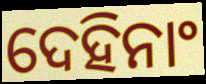
ଦେହିନାଂ